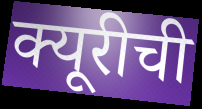
क्यूरीची